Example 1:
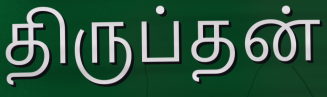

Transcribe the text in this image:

திருப்தன்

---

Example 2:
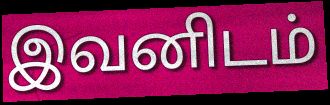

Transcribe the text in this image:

இவனிடம்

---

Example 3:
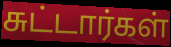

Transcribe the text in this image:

சுட்டார்கள்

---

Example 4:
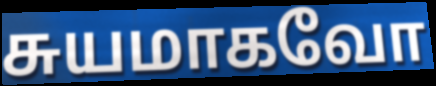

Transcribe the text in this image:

சுயமாகவோ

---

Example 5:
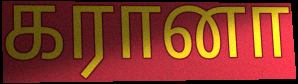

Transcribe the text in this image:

கரானா